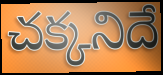
చక్కనిదే